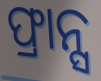
ଫ୍ରାନ୍ସ